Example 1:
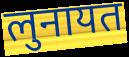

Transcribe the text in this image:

लुनायत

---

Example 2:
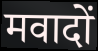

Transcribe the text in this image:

मवादों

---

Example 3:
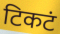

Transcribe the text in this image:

टिकटं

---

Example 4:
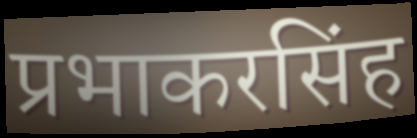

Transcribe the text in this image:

प्रभाकरसिंह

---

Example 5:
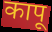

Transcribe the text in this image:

कापू